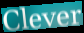
Clever